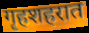
गृहशहरात